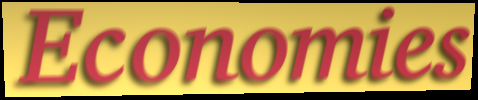
Economies